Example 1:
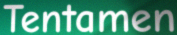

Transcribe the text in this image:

Tentamen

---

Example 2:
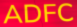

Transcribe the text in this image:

ADFC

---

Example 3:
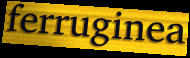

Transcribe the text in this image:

ferruginea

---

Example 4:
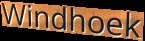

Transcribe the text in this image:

Windhoek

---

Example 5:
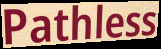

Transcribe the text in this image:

Pathless